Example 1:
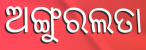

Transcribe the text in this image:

ଅଙ୍ଗୁରଲତା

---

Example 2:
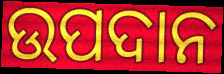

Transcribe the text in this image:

ଉପଦାନ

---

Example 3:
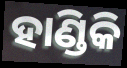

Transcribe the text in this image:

ହାଣ୍ଡିକି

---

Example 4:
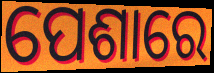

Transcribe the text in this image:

ପେଶାରେ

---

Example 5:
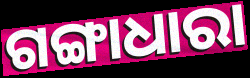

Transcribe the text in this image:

ଗଙ୍ଗାଧାରା